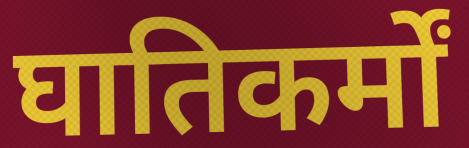
घातिकर्मों